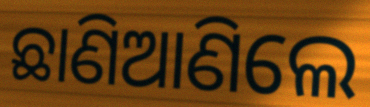
ଛାଣିଆଣିଲେ